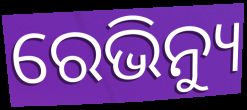
ରେଭିନ୍ୟୁ